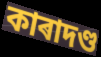
কাৰাদণ্ড